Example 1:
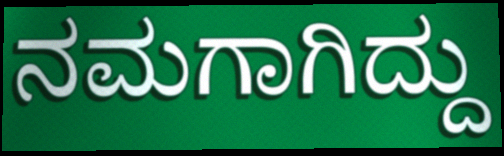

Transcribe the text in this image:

ನಮಗಾಗಿದ್ದು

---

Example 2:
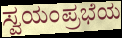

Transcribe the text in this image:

ಸ್ವಯಂಪ್ರಭೆಯ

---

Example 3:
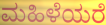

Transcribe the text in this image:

ಮಹಿಳೆಯರೆ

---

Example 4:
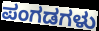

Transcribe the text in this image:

ಪಂಗಡಗಳು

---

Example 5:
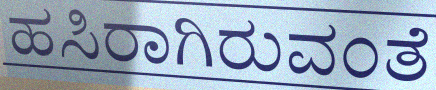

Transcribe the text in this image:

ಹಸಿರಾಗಿರುವಂತೆ